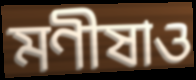
মণীষাও